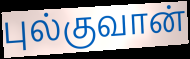
புல்குவான்